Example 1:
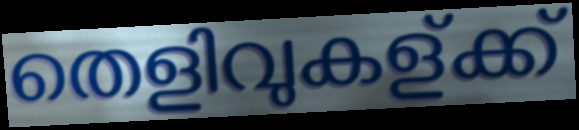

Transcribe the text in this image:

തെളിവുകള്ക്ക്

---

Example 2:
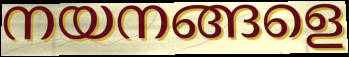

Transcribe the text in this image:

നയനങ്ങളെ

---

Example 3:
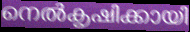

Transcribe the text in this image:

നെൽകൃഷിക്കായി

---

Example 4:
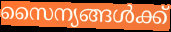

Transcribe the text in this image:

സൈന്യങ്ങൾക്ക്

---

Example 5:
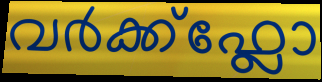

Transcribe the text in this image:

വർക്ക്ഫ്ലോ